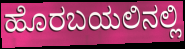
ಹೊರಬಯಲಿನಲ್ಲಿ